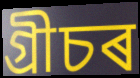
গ্ৰীচৰ